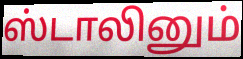
ஸ்டாலினும்